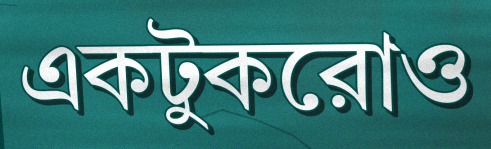
একটুকরোও